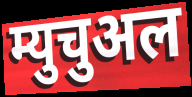
म्युचुअल